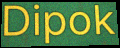
Dipok